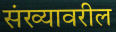
संख्यावरील